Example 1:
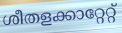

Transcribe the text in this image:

ശീതളക്കാറ്റേറ്റ്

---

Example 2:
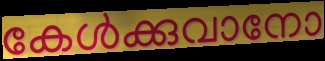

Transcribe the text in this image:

കേൾക്കുവാനോ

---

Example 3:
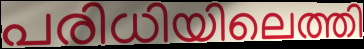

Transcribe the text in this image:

പരിധിയിലെത്തി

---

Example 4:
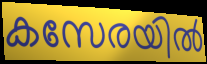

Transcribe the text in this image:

കസേരയിൽ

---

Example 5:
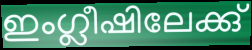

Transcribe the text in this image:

ഇംഗ്ലീഷിലേക്കു്